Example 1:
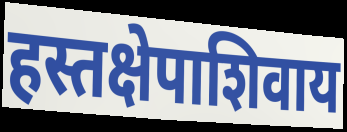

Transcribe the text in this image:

हस्तक्षेपाशिवाय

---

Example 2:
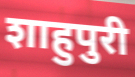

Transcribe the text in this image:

शाहुपुरी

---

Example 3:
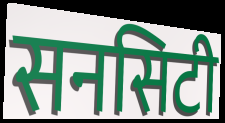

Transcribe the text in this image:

सनसिटी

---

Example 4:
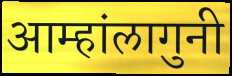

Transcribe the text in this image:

आम्हांलागुनी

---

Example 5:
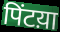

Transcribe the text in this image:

पिंटय़ा